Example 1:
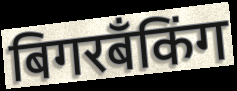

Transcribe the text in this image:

बिगरबँकिंग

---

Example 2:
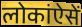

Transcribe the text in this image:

लोकांऐसें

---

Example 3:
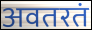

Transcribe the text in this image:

अवतरतं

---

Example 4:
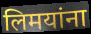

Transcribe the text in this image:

लिमयांना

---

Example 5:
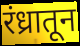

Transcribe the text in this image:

रंध्रातून